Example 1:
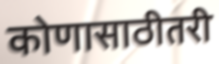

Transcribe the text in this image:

कोणासाठीतरी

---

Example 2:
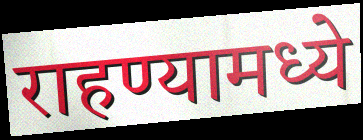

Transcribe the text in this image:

राहण्यामध्ये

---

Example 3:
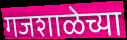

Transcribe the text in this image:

गजशाळेच्या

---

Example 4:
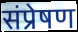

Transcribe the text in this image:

संप्रेषण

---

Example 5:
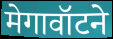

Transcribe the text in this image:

मेगावॉटने